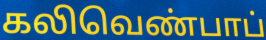
கலிவெண்பாப்